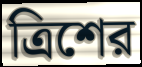
ত্রিশের